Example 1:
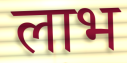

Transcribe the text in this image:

लाभ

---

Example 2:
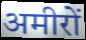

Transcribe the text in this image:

अमीरों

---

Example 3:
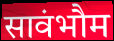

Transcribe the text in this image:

सावंभौम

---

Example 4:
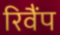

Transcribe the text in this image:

रिवैंप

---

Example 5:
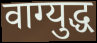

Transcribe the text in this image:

वाग्युद्ध